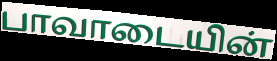
பாவாடையின்